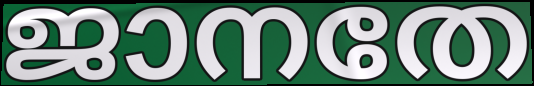
ജാനതേ